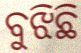
ବୁଝିଛି